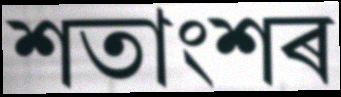
শতাংশৰ